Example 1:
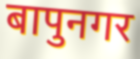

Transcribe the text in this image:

बापुनगर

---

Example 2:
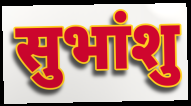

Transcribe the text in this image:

सुभांशु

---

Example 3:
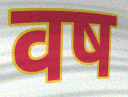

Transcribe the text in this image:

वष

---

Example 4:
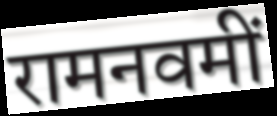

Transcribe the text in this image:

रामनवमीं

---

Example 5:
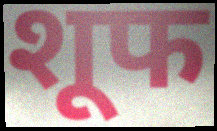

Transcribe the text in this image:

शूफ